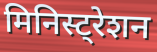
मिनिस्ट्रेशन